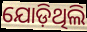
ଯୋଡ଼ିଥିଲି